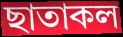
ছাতাকল